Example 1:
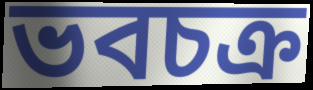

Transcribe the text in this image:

ভবচক্র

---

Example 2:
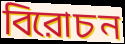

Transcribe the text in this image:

বিরোচন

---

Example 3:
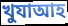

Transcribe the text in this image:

খুযাআহ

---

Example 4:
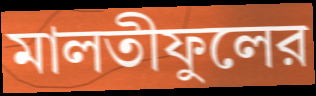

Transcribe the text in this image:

মালতীফুলের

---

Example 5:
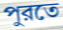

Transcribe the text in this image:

পুরতে